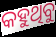
କହୁଥିବୁ